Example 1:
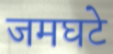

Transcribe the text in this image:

जमघटे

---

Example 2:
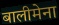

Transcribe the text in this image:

बालीमेना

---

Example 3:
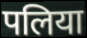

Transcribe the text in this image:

पलिया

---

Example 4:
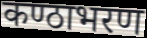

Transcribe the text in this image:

कण्ठाभरण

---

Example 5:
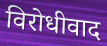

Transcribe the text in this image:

विरोधीवाद